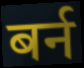
बर्न